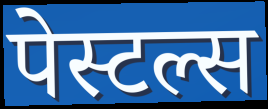
पेस्टल्स